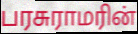
பரசுராமரின்